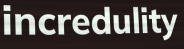
incredulity